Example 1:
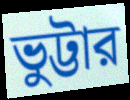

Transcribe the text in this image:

ভুট্টার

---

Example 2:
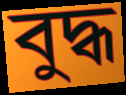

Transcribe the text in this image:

বুদ্ধ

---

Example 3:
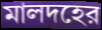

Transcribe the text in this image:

মালদহের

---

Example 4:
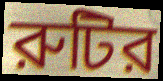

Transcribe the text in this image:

রুটির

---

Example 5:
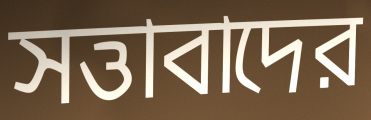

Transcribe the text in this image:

সত্তাবাদের